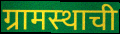
ग्रामस्थाची